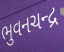
ભુવનચન્દ્ર